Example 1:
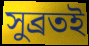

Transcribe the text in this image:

সুব্ৰতই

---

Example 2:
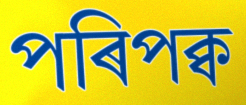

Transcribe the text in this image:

পৰিপক্ব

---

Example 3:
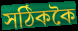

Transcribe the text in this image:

সঠিককৈ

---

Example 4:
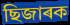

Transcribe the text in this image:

ছিজাৰক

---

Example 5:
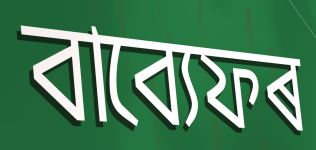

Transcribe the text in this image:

বাব্যেফৰ